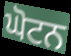
ਘੋਟਨ